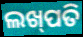
ଲଖ୍‌ପତି